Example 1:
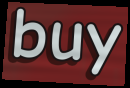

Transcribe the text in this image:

buy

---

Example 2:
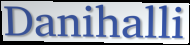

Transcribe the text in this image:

Danihalli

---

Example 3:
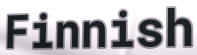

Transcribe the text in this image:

Finnish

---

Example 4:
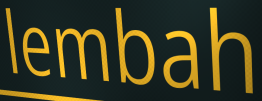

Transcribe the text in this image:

lembah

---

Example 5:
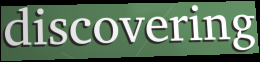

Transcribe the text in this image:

discovering